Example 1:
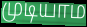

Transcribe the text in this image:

முடியாம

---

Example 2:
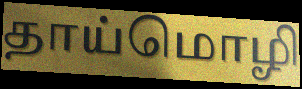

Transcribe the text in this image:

தாய்மொழி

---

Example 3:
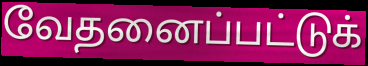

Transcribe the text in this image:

வேதனைப்பட்டுக்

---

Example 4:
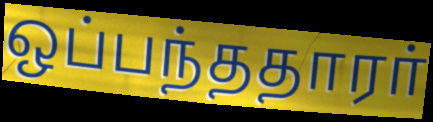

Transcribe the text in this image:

ஒப்பந்ததாரர்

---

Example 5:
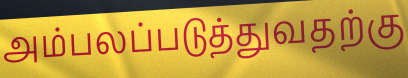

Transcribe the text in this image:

அம்பலப்படுத்துவதற்கு